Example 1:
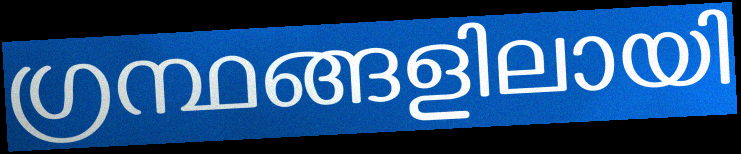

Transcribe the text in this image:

ഗ്രന്ഥങ്ങളിലായി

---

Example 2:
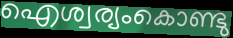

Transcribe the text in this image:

ഐശ്വര്യംകൊണ്ടു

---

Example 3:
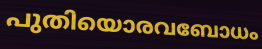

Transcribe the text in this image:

പുതിയൊരവബോധം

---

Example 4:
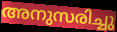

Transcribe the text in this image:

അനുസരിച്ചു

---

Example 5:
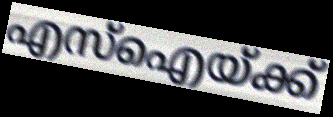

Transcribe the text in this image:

എസ്ഐയ്ക്ക്